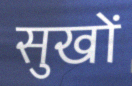
सुखों